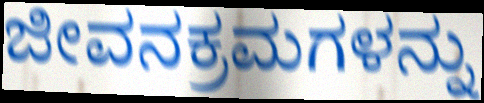
ಜೀವನಕ್ರಮಗಳನ್ನು